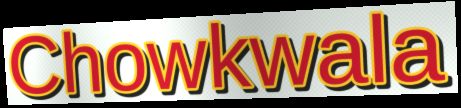
Chowkwala